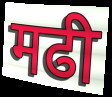
मढी